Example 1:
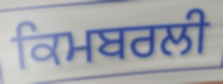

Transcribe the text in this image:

ਕਿਮਬਰਲੀ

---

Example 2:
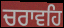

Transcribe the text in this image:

ਚਰਾਵਹਿ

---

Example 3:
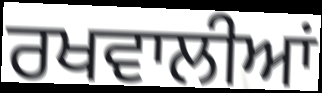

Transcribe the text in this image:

ਰਖਵਾਲੀਆਂ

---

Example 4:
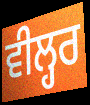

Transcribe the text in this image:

ਵੀਲ੍ਹਰ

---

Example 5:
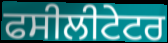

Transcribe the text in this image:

ਫਸੀਲੀਟੇਟਰ